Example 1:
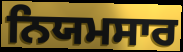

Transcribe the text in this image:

ਨਿਯਮਸਾਰ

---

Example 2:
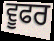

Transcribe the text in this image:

ਵੂਫਰ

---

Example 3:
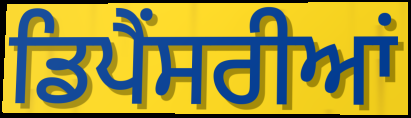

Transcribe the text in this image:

ਡਿਪੈਂਸਰੀਆਂ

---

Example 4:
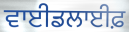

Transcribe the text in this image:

ਵਾਈਡਲਾਈਫ਼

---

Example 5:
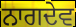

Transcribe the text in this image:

ਨਾਗਦੇਵ